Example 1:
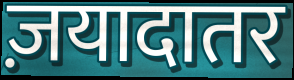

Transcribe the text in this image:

ज़यादातर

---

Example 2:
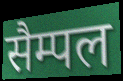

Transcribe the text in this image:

सैम्पल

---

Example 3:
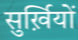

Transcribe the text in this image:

सुर्ख़ियों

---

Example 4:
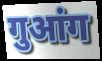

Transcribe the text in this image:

गुआंग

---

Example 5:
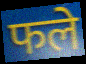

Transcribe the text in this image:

फले